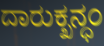
ದಾರುಕ್ಖನ್ಧಂ